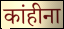
कांहीना